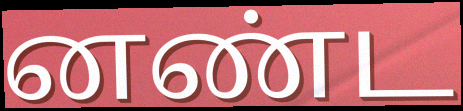
னண்ட